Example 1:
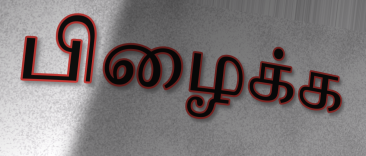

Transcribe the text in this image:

பிழைக்க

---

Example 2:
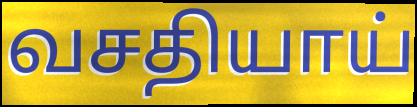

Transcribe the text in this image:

வசதியாய்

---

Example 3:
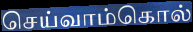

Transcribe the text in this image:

செய்வாம்கொல்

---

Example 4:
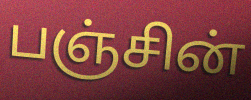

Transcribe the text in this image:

பஞ்சின்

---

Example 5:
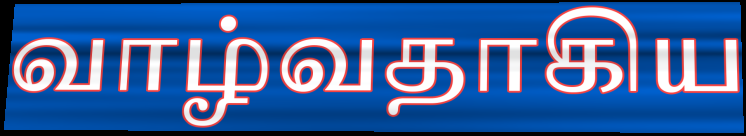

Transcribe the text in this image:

வாழ்வதாகிய